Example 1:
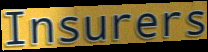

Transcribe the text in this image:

Insurers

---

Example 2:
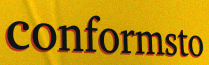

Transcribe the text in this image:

conformsto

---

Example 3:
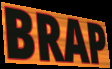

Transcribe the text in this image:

BRAP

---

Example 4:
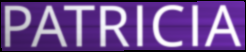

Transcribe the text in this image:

PATRICIA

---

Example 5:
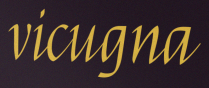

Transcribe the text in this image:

vicugna